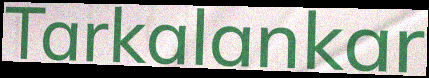
Tarkalankar